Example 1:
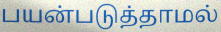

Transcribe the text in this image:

பயன்படுத்தாமல்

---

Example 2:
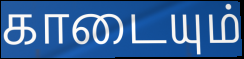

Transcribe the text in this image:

காடையும்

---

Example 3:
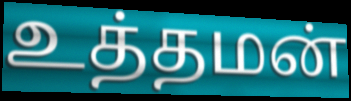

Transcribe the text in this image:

உத்தமன்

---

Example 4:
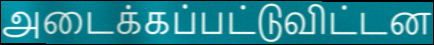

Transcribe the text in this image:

அடைக்கப்பட்டுவிட்டன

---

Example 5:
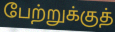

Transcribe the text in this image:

பேற்றுக்குத்